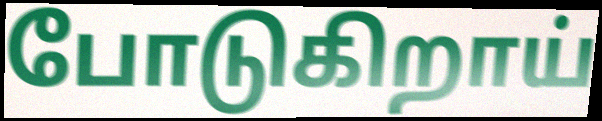
போடுகிறாய்